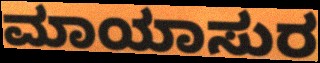
ಮಾಯಾಸುರ